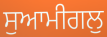
ਸੁਆਮੀਗਲੁ